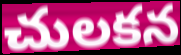
చులకన